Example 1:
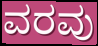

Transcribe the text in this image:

ವರವು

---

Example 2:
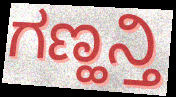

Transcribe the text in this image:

ಗಣ್ಹನ್ತಿ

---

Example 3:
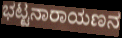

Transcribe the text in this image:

ಭಟ್ಟನಾರಾಯಣನ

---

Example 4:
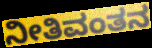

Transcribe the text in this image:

ನೀತಿವಂತನ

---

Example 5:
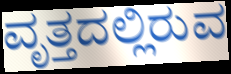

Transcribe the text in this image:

ವೃತ್ತದಲ್ಲಿರುವ